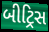
બીટ્રિસ